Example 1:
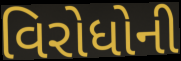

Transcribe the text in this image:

વિરોધોની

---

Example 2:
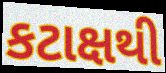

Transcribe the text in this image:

કટાક્ષથી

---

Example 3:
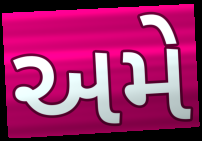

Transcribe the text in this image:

અમે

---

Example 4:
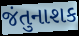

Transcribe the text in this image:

જંતુનાશક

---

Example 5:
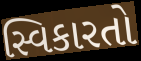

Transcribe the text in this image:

સ્વિકારતો